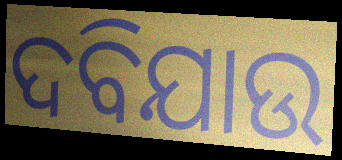
ଦବିଯାଉ